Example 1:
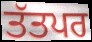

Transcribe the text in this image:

ਤੱਤਪਰ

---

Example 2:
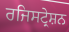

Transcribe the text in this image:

ਰਜਿਸਟ੍ਰੇਸ਼ਨ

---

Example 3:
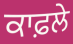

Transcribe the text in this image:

ਕਾਫ਼ਲੇ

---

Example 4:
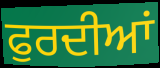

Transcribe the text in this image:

ਫੁਰਦੀਆਂ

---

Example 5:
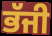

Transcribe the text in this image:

ਭੱਜੀ